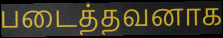
படைத்தவனாக